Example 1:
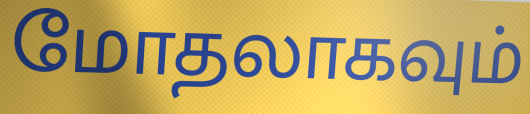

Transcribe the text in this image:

மோதலாகவும்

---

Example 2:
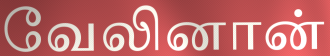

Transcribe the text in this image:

வேலினான்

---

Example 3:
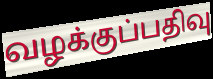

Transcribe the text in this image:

வழக்குப்பதிவு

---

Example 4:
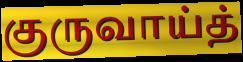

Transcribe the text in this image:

குருவாய்த்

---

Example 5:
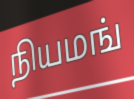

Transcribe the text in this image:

நியமங்